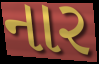
નાર